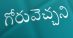
గోరువెచ్చని